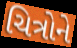
ચિત્રોને